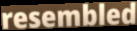
resembled